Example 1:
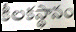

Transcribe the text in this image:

కీలకస్థానం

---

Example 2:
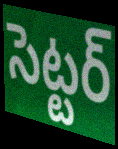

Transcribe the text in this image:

సెట్టర్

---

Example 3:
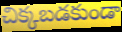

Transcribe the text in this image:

చిక్కబడకుండా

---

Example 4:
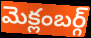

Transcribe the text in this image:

మెక్లంబర్గ్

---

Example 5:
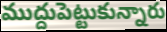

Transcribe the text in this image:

ముద్దుపెట్టుకున్నారు